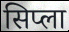
सिप्ला